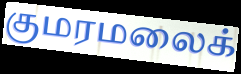
குமரமலைக்